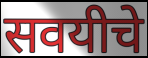
सवयीचे